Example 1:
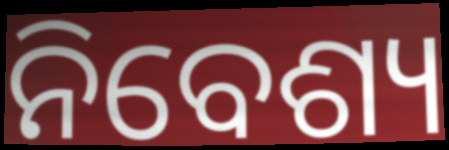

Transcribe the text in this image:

ନିବେଶ୍ୟ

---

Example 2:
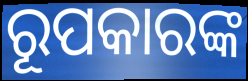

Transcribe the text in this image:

ରୂପକାରଙ୍କ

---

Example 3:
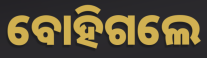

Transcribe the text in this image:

ବୋହିଗଲେ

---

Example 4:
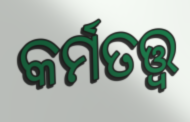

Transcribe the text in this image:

କର୍ମତତ୍ତ୍ୱ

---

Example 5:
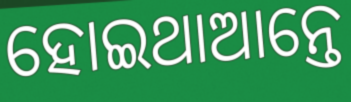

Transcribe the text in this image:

ହୋଇଥାଆନ୍ତେ